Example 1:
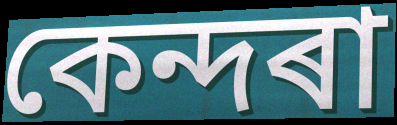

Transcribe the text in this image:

কেন্দৰা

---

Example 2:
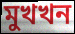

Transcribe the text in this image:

মুখখন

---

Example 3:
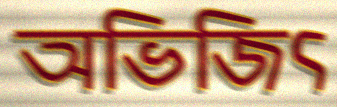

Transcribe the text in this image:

অভিজিৎ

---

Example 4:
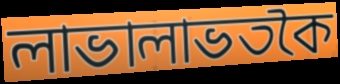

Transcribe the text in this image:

লাভালাভতকৈ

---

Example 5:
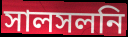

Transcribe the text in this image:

সালসলনি